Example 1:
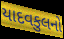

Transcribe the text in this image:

યાદવકુલનો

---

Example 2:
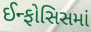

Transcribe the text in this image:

ઈન્ફોસિસમાં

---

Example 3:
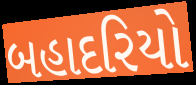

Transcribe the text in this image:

બહાદરિયો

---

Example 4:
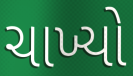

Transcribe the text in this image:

ચાખ્યો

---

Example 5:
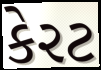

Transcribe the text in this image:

કેરટ